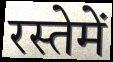
रस्तेमें